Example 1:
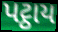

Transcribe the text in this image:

પટ્ઠાય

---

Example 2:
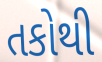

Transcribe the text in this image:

તકોથી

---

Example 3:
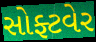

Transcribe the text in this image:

સોફ્ટવેર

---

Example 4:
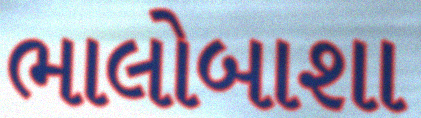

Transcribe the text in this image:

ભાલોબાશા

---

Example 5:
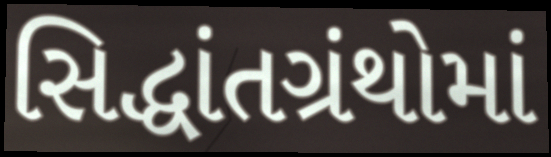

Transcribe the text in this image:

સિદ્ધાંતગ્રંથોમાં